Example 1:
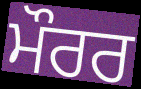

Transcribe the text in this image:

ਮੌਰਰ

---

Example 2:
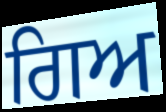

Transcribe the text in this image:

ਗਿਅ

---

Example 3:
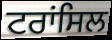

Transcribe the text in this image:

ਟਰਾਂਸਿਲ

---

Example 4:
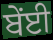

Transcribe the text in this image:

ਬੇਂਈ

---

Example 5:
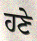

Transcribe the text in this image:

ਹਣੇ